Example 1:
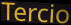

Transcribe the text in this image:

Tercio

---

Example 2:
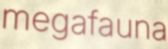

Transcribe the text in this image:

megafauna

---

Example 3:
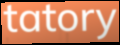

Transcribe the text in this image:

tatory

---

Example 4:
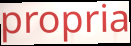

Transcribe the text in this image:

propria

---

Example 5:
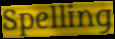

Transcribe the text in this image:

Spelling